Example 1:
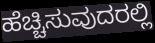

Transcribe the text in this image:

ಹೆಚ್ಚಿಸುವುದರಲ್ಲಿ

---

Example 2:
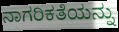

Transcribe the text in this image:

ನಾಗರಿಕತೆಯನ್ನು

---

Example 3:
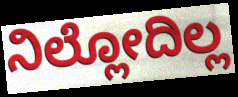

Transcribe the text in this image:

ನಿಲ್ಲೋದಿಲ್ಲ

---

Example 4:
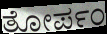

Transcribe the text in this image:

ತೋರ್ಪಂ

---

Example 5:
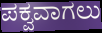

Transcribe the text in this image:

ಪಕ್ವವಾಗಲು